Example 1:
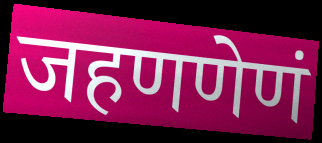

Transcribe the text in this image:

जहणणेणं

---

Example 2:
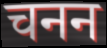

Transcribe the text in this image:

चनन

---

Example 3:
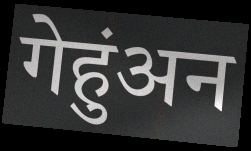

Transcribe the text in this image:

गेहुंअन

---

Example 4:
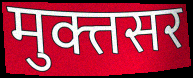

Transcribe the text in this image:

मुक्तसर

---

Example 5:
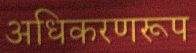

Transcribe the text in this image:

अधिकरणरूप